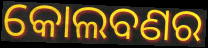
କୋଲବଣର